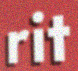
rit